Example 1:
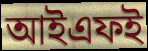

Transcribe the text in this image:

আইএফই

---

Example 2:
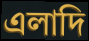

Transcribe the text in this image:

এলাদি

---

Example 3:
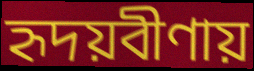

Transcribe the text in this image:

হৃদয়বীণায়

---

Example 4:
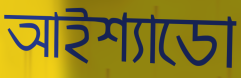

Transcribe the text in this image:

আইশ্যাডো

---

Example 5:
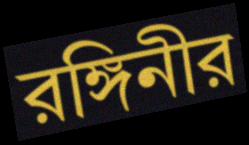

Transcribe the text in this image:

রঙ্গিনীর